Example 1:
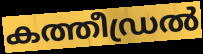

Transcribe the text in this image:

കത്തീഡ്രൽ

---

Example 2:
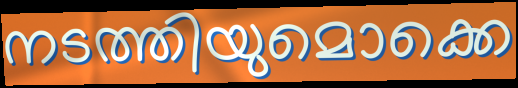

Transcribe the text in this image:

നടത്തിയുമൊക്കെ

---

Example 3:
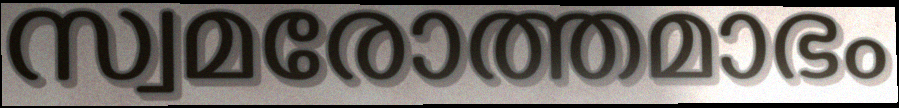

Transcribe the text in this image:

സ്വമരോത്തമാഭം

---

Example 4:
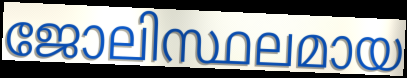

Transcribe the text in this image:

ജോലിസ്ഥലമായ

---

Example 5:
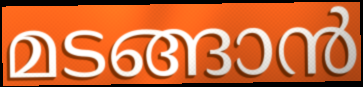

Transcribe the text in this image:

മടങ്ങാൻ